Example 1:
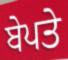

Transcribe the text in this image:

ਬੇਪਤੇ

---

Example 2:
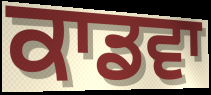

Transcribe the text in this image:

ਕਾਡਵਾ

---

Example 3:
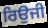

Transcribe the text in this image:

ਰਿਉਜੀ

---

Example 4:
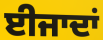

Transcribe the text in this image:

ਈਜਾਦਾਂ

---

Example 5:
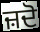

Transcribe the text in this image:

ਜ਼ਦੋ